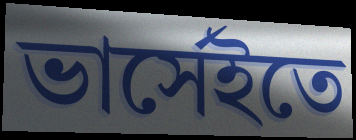
ভার্সেইতে